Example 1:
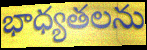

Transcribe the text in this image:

భాధ్యతలను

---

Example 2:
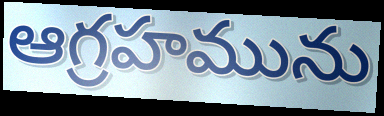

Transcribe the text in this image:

ఆగ్రహమును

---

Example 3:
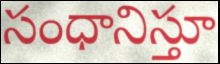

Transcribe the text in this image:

సంధానిస్తూ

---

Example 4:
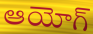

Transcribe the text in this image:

ఆయోగ్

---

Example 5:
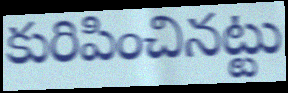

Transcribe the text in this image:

కురిపించినట్టు